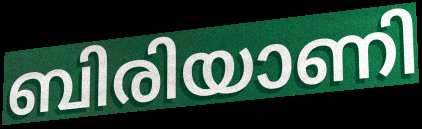
ബിരിയാണി